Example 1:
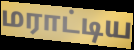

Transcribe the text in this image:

மராட்டிய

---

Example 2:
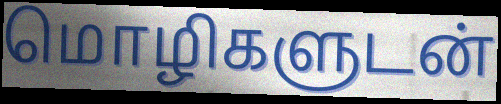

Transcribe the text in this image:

மொழிகளுடன்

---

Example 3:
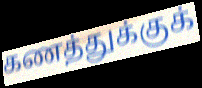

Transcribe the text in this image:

கணத்துக்குக்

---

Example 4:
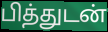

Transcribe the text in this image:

பித்துடன்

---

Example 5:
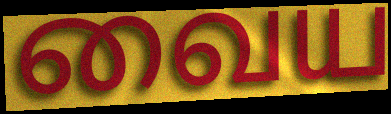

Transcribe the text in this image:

வைய